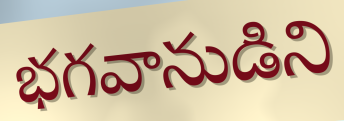
భగవానుడిని